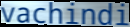
vachindi